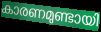
കാരണമുണ്ടായി